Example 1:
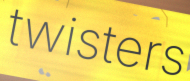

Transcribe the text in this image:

twisters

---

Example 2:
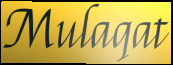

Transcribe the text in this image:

Mulaqat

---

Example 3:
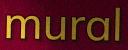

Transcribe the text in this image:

mural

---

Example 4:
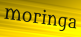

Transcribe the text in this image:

moringa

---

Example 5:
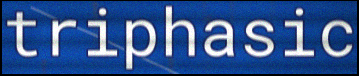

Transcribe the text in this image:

triphasic